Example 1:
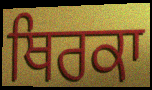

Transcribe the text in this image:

ਥਿਰਕਾ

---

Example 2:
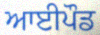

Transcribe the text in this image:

ਆਈਪੌਡ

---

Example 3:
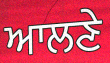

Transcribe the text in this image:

ਆਲਣੇ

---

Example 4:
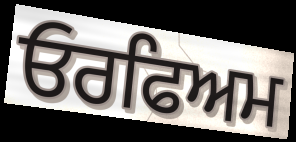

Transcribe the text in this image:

ਓਰਫਿਅਮ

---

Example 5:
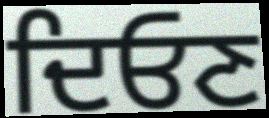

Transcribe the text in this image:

ਦਿਓਣ